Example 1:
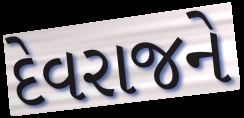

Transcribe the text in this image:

દેવરાજને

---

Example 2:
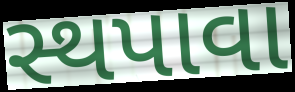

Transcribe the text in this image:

સ્થપાવા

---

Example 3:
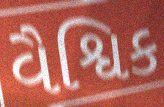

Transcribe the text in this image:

વૈશ્વિક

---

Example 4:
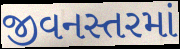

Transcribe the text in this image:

જીવનસ્તરમાં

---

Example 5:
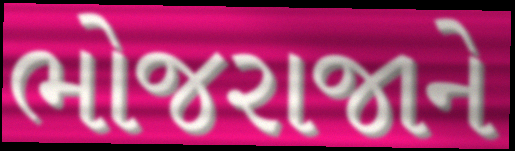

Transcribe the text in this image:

ભોજરાજાને